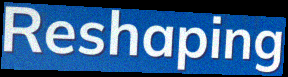
Reshaping